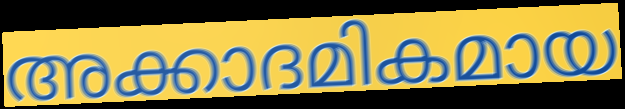
അക്കാദമികമായ